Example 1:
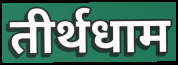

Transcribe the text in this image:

तीर्थधाम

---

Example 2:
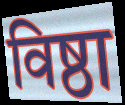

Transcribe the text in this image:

विष्ठा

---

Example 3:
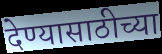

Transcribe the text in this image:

देण्यासाठीच्या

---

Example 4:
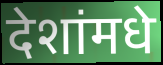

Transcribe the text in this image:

देशांमधे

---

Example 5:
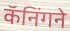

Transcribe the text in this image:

कॅनिंगने